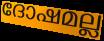
ദോഷമല്ല